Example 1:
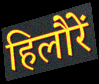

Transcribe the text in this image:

हिलौरें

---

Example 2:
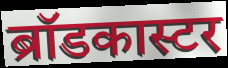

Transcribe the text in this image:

ब्रॉडकास्टर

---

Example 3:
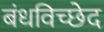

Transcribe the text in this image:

बंधविच्छेद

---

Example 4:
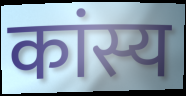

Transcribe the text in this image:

कांस्‍य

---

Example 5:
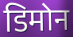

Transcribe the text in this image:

डिमोन